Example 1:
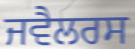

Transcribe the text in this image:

ਜਵੈਲਰਸ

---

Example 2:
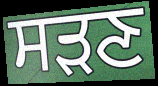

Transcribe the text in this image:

ਸੜਣ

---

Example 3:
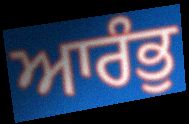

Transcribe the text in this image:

ਆਰੰਭੁ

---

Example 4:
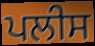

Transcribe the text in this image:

ਪਲੀਸ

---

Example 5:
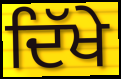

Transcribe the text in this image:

ਦਿੱਖੇ